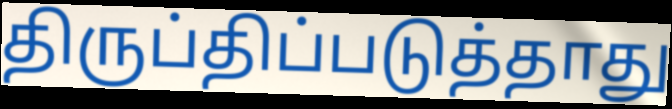
திருப்திப்படுத்தாது